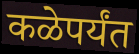
कळेपर्यंत